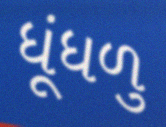
ધૂંધળુ